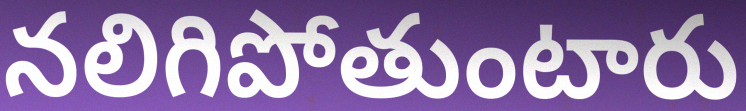
నలిగిపోతుంటారు